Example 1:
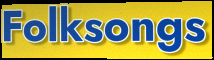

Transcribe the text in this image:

Folksongs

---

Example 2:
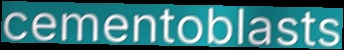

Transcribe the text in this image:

cementoblasts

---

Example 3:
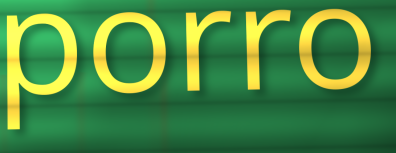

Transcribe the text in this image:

porro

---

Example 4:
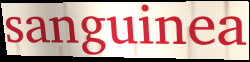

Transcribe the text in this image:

sanguinea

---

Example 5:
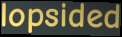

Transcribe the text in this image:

lopsided